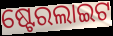
ଷ୍ଟେରଲାଇଟ